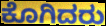
ಕೊಗಿದರು